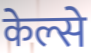
केल्से